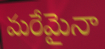
మరేమైనా